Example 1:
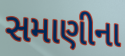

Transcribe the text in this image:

સમાણીના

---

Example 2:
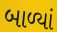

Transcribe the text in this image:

બાળ્યાં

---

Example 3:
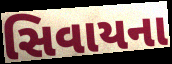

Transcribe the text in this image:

સિવાયના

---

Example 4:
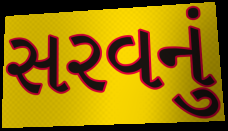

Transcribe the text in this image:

સરવનું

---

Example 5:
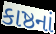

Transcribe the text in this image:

કાષ્ઠનાં